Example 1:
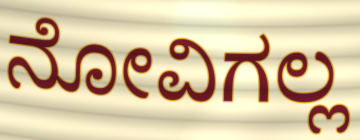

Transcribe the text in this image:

ನೋವಿಗಲ್ಲ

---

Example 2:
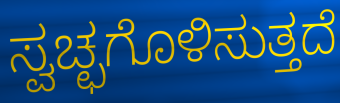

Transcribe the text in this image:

ಸ್ವಚ್ಛಗೊಳಿಸುತ್ತದೆ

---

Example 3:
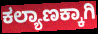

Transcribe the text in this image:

ಕಲ್ಯಾಣಕ್ಕಾಗಿ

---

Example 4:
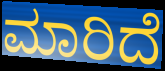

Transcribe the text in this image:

ಮಾರಿದೆ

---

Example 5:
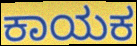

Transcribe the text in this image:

ಕಾಯಕ